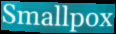
Smallpox